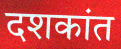
दशकांत